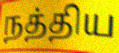
நத்திய